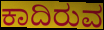
ಕಾದಿರುವ